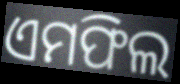
ଏମଫିଲ